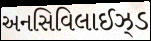
અનસિવિલાઈઝ્ડ